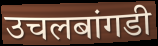
उचलबांगडी